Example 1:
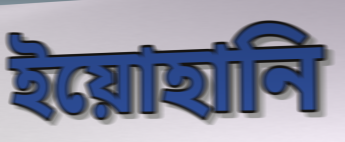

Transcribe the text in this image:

ইয়োহানি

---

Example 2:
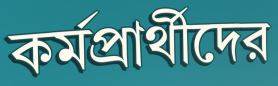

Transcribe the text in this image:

কর্মপ্রার্থীদের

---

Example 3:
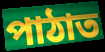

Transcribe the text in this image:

পাঠাত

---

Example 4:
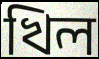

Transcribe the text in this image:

খিল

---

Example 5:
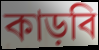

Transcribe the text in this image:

কাড়বি